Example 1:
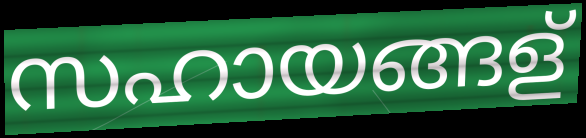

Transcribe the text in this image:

സഹായങ്ങള്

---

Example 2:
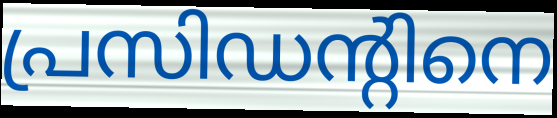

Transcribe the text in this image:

പ്രസിഡന്റിനെ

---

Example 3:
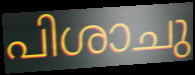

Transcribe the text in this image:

പിശാചു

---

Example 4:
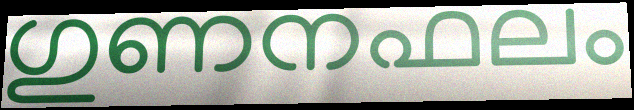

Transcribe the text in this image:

ഗുണനഫലം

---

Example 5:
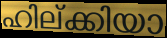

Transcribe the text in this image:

ഹില്ക്കിയാ